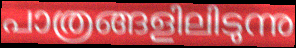
പാത്രങ്ങളിലിടുന്നു